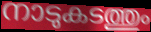
നാടുകടത്തും